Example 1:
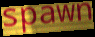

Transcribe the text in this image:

spawn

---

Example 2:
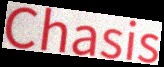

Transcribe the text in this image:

Chasis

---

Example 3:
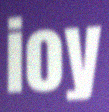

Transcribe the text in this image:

ioy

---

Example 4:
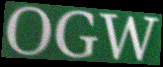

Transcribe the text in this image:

OGW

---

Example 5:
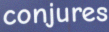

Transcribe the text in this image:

conjures